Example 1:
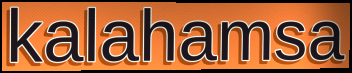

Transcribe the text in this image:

kalahamsa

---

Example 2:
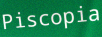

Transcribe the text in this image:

Piscopia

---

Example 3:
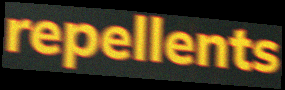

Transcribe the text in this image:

repellents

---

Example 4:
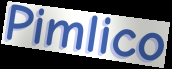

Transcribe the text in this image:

Pimlico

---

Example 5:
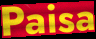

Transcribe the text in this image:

Paisa